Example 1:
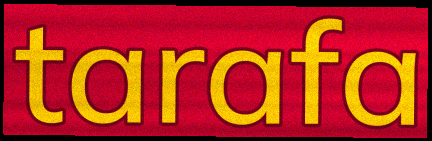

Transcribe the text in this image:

tarafa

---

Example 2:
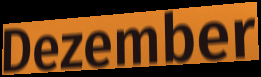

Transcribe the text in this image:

Dezember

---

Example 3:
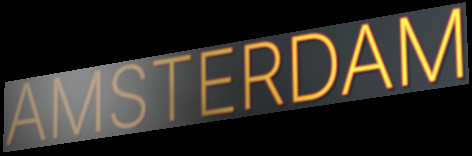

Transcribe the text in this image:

AMSTERDAM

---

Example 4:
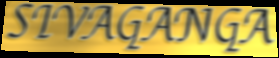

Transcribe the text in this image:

SIVAGANGA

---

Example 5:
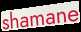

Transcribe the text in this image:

shamane